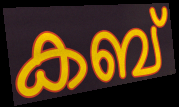
കബ്